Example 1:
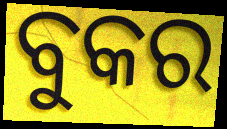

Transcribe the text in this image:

ବୁକର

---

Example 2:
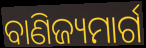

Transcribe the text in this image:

ବାଣିଜ୍ୟମାର୍ଗ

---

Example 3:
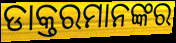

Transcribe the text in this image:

ଡାକ୍ତରମାନଙ୍କର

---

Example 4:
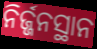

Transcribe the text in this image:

ନିର୍ଜ୍ଜନସ୍ଥାନ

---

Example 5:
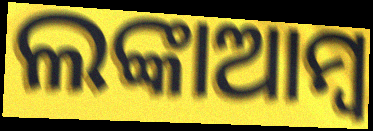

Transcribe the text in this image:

ଲଙ୍କାଆମ୍ବ